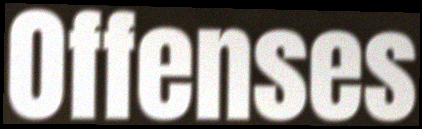
Offenses